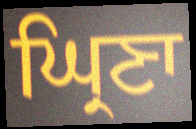
ਘ੍ਰਿਣਾ